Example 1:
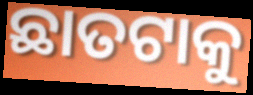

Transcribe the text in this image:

ଛାତଟାକୁ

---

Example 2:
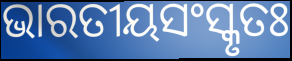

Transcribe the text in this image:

ଭାରତୀୟସଂସ୍କୃତଃ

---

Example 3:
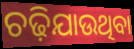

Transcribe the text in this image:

ଚଢ଼ିଯାଉଥିବା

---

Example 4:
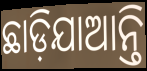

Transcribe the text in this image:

ଛାଡ଼ିଯାଆନ୍ତି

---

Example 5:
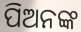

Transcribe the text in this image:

ପିଅନଙ୍କ